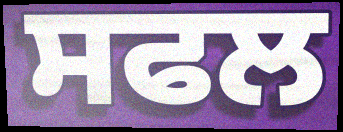
ਸਫਲ